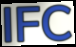
IFC